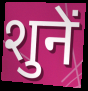
शुनें